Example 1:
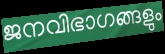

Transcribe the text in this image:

ജനവിഭാഗങ്ങളും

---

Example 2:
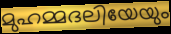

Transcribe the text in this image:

മുഹമ്മദലിയേയും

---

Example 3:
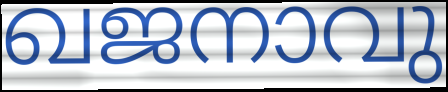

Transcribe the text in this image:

ഖജനാവു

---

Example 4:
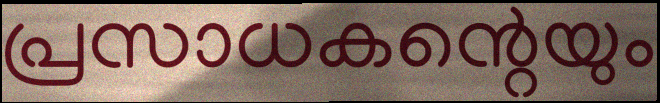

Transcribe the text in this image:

പ്രസാധകന്റെയും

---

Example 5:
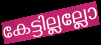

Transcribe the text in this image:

കേട്ടില്ലല്ലോ